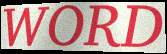
WORD